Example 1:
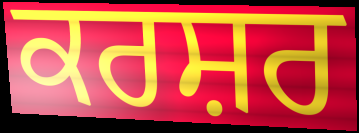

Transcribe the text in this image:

ਕਰਸ਼ਰ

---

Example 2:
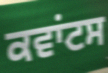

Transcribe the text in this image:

ਕਵਾਂਟਸ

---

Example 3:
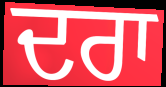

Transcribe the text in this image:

ਦਰਾ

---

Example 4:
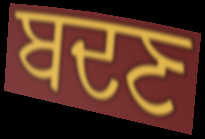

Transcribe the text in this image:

ਬਦਣ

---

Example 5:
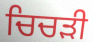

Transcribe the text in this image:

ਚਿਚੜੀ